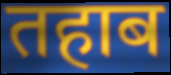
तहाब